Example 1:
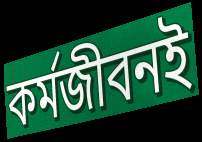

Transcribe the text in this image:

কর্মজীবনই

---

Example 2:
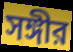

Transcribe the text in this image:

সঙ্গীর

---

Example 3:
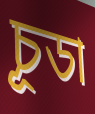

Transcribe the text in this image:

চূডা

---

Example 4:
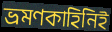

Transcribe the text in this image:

ভ্রমণকাহিনিই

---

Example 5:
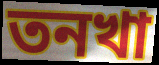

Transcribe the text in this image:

তনখা